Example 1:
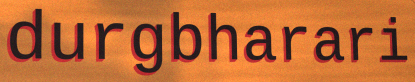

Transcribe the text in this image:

durgbharari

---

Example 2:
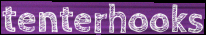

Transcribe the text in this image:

tenterhooks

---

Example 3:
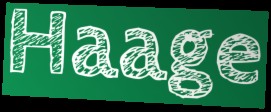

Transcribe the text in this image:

Haage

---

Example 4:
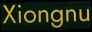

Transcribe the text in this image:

Xiongnu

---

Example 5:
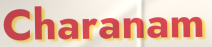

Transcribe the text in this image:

Charanam